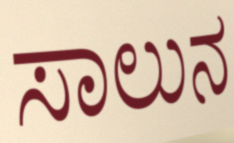
ಸಾಲುನ